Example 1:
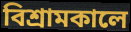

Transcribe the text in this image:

বিশ্রামকালে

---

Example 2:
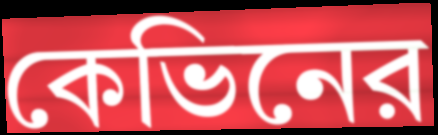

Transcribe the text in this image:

কেভিনের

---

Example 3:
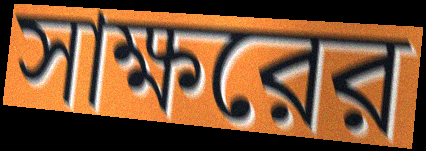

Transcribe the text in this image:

সাক্ষরের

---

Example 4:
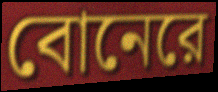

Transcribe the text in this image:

বোনেরে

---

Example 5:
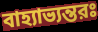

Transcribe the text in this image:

বাহ্যাভ্যন্তরঃ